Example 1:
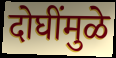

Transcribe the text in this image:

दोघींमुळे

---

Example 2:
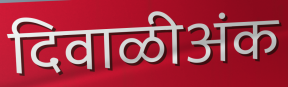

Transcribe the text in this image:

दिवाळीअंक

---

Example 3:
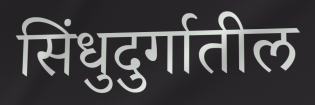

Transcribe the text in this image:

सिंधुदुर्गातील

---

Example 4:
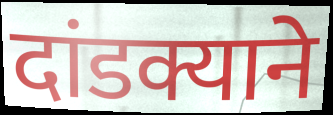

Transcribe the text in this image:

दांडक्याने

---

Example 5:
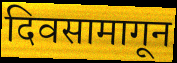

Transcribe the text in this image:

दिवसामागून